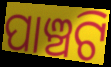
ପାଞ୍ଚଟି